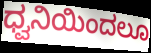
ಧ್ವನಿಯಿಂದಲೂ